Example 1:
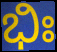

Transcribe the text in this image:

ಭಿಃ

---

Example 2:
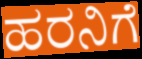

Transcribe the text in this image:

ಹರನಿಗೆ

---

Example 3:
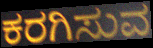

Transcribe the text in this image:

ಕರಗಿಸುವ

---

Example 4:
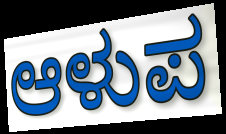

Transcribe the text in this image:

ಆಳುಪ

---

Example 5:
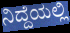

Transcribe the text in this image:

ನಿದ್ದೆಯಲ್ಲಿ